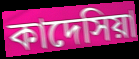
কাদেসিয়া